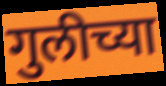
गुलीच्या